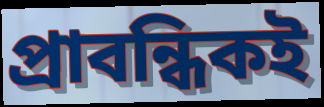
প্রাবন্ধিকই